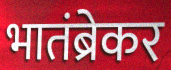
भातंब्रेकर